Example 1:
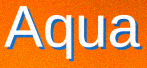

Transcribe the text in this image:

Aqua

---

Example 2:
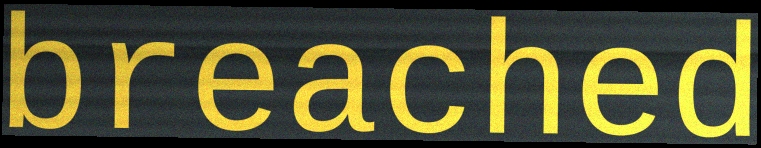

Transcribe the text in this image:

breached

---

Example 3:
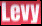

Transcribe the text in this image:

Levy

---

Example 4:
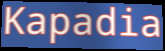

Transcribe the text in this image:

Kapadia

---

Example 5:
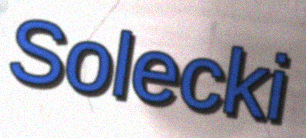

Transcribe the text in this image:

Solecki